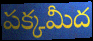
పక్కమీద